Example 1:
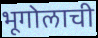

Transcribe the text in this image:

भूगोलाची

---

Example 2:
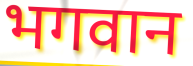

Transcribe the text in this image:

भगवान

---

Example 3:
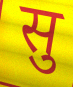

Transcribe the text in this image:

सु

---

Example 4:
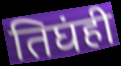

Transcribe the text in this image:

तिघंही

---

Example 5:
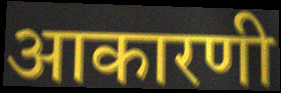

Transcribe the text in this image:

आकारणी